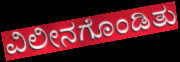
ವಿಲೀನಗೊಂಡಿತು